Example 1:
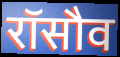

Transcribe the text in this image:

रॉसौव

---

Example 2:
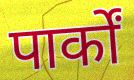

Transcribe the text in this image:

पार्कों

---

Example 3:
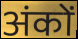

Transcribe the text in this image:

अंकों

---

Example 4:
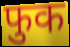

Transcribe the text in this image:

फुक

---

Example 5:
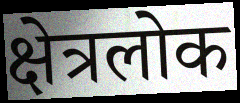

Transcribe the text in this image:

क्षेत्रलोक